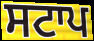
ਸਟਾਪ